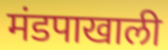
मंडपाखाली